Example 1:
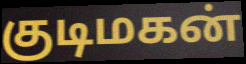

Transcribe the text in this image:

குடிமகன்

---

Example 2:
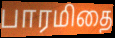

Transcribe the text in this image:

பாரமிதை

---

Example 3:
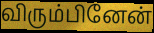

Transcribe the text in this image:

விரும்பினேன்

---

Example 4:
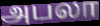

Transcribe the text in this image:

அபலா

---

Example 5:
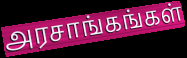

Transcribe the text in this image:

அரசாங்கங்கள்